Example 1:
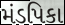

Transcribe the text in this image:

મંડપિકા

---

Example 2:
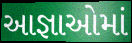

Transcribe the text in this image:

આજ્ઞાઓમાં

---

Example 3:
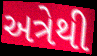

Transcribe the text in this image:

અત્રેથી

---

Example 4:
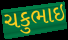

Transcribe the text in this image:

ચકુભાઇ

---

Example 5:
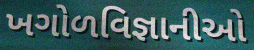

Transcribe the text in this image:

ખગોળવિજ્ઞાનીઓ